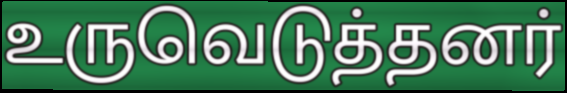
உருவெடுத்தனர்